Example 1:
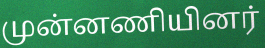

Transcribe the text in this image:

முன்னணியினர்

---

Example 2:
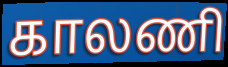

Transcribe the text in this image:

காலணி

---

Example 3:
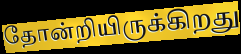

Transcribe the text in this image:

தோன்றியிருக்கிறது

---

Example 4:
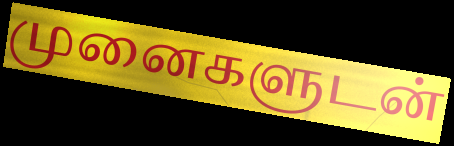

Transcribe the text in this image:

முனைகளுடன்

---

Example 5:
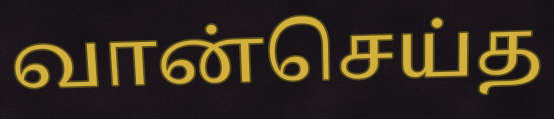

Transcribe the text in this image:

வான்செய்த